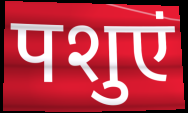
पशुएं